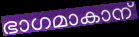
ഭാഗമാകാന്